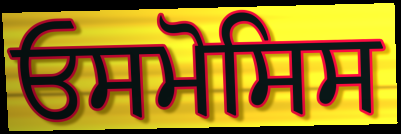
ਓਸਮੋਸਿਸ